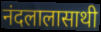
नंदलालासाथी